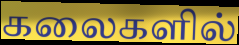
கலைகளில்